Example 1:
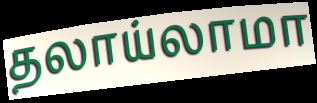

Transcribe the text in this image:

தலாய்லாமா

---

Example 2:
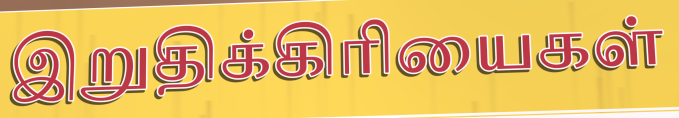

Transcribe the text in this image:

இறுதிக்கிரியைகள்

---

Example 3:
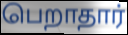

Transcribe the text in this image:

பெறாதார்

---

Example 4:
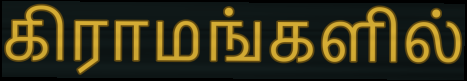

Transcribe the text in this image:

கிராமங்களில்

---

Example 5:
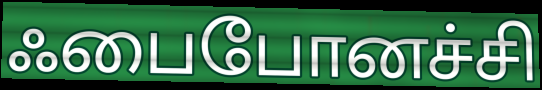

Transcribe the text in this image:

ஃபைபோனச்சி